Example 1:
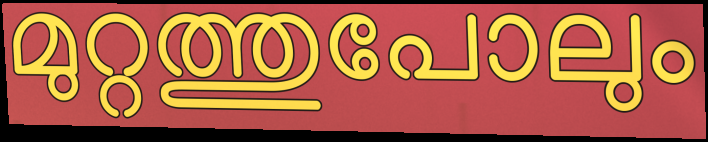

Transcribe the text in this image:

മുറ്റത്തുപോലും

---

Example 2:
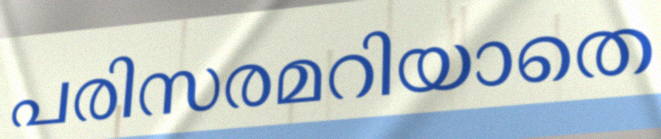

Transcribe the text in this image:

പരിസരമറിയാതെ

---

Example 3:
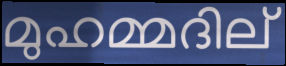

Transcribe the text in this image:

മുഹമ്മദില്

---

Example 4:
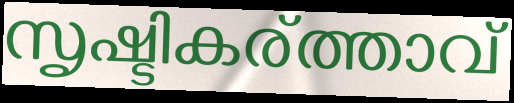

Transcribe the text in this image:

സൃഷ്ടികര്ത്താവ്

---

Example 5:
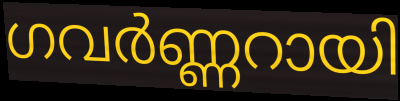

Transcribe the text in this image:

ഗവർണ്ണറായി